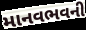
માનવભવની